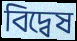
বিদ্বেষ